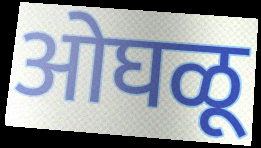
ओघळू